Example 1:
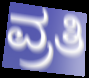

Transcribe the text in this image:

ವ್ರತಿ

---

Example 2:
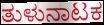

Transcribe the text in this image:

ತುಳುನಾಟಕ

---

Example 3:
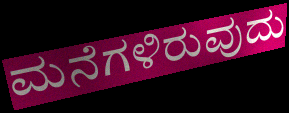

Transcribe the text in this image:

ಮನೆಗಳಿರುವುದು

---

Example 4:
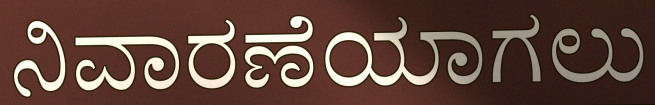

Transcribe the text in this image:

ನಿವಾರಣೆಯಾಗಲು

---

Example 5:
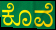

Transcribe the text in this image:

ಕೊವೆ